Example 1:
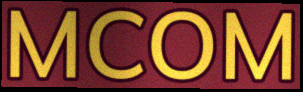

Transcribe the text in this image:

MCOM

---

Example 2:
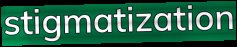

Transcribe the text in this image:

stigmatization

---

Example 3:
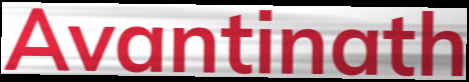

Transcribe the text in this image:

Avantinath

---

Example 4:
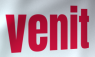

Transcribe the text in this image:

venit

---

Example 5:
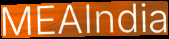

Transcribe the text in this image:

MEAIndia